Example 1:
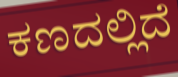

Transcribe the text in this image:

ಕಣದಲ್ಲಿದೆ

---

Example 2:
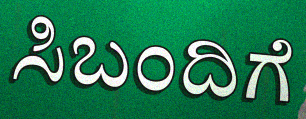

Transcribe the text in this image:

ಸಿಬಂದಿಗೆ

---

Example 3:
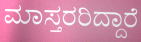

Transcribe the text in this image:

ಮಾಸ್ತರರಿದ್ದಾರೆ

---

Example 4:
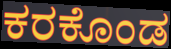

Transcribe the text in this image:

ಕರಕೊಂಡ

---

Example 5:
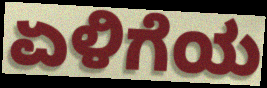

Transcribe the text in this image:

ಏಳಿಗೆಯ